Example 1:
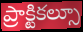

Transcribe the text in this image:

ప్రాక్టికల్సూ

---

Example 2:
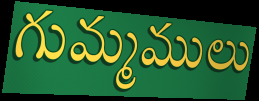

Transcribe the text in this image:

గుమ్మములు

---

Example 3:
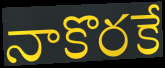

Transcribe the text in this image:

నాకొరకే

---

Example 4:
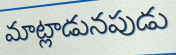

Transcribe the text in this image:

మాట్లాడునపుడు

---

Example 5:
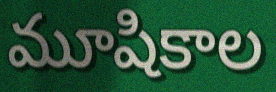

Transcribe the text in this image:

మూషికాల